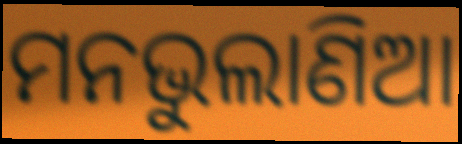
ମନଭୁଲାଣିଆ